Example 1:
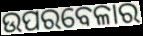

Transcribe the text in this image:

ଉପରବେଳାର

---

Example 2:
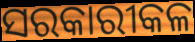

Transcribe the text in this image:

ସରକାରୀକଳ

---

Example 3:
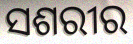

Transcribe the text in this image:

ସଶରୀର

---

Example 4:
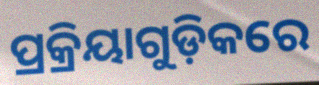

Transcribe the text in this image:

ପ୍ରକ୍ରିୟାଗୁଡ଼ିକରେ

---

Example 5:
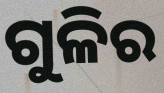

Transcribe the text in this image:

ଗୁଳିର